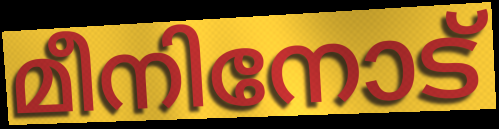
മീനിനോട്